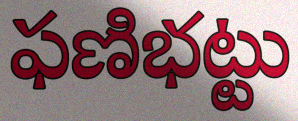
ఫణిభట్టు